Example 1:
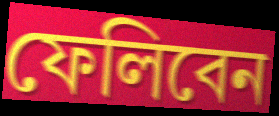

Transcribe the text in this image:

ফেলিবেন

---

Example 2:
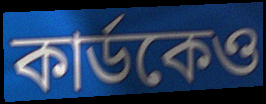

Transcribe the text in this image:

কার্ডকেও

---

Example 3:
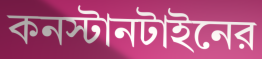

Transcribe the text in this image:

কনস্টানটাইনের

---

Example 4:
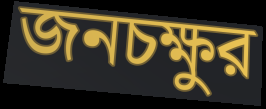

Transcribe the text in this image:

জনচক্ষুর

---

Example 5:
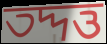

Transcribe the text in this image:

তদ্দত্ত